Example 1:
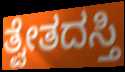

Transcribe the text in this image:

ತ್ವೇತದಸ್ತಿ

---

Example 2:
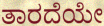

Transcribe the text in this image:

ತಾರದೆಯೇ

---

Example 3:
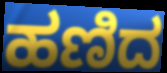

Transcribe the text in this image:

ಹಣಿದ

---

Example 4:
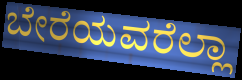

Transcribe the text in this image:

ಬೇರೆಯವರೆಲ್ಲಾ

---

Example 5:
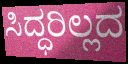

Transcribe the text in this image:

ಸಿದ್ಧರಿಲ್ಲದ